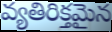
వ్యతిరిక్తమైన